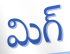
మిగ్